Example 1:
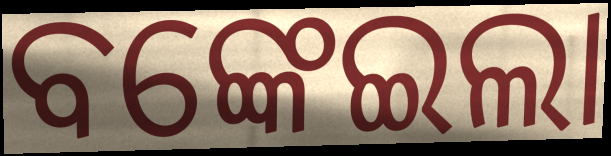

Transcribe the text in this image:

ବଙ୍କେଇଲା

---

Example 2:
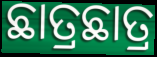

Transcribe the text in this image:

ଛାତ୍ରଛାତ୍ର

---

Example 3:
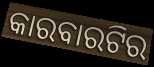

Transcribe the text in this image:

କାରବାରଟିର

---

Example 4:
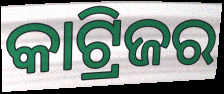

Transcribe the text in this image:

କାଟ୍ରିଜର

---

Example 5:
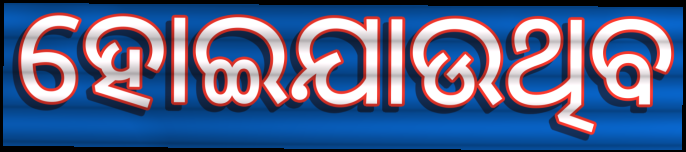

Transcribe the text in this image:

ହୋଇଯାଉଥିବ